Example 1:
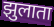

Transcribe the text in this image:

झुलाता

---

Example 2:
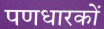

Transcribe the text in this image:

पणधारकों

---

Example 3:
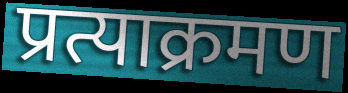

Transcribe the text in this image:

प्रत्याक्रमण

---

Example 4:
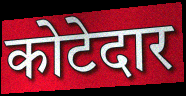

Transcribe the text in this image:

कोटेदार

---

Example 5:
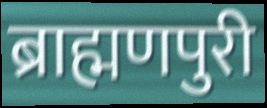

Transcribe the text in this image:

ब्राह्मणपुरी